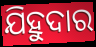
ଯିହୁଦାର